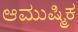
ಆಮುಷ್ಮಿಕ